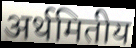
अर्थमितीय